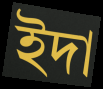
ইদা